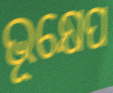
ଭୂକ୍ଷେପ